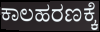
ಕಾಲಹರಣಕ್ಕೆ